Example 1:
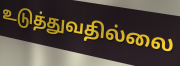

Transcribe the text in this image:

உடுத்துவதில்லை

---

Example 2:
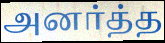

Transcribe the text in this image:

அனர்த்த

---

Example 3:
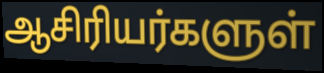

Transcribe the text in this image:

ஆசிரியர்களுள்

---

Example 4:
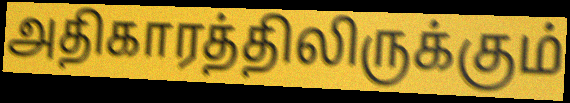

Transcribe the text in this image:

அதிகாரத்திலிருக்கும்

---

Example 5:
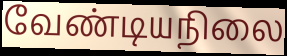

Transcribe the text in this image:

வேண்டியநிலை